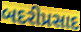
બદરીપ્રસાદ